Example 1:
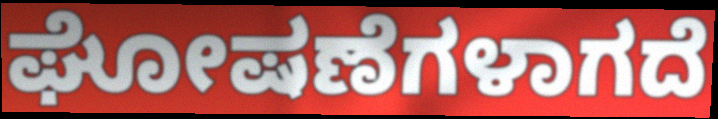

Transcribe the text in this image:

ಘೋಷಣೆಗಳಾಗದೆ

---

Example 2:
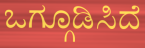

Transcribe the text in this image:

ಒಗ್ಗೂಡಿಸಿದೆ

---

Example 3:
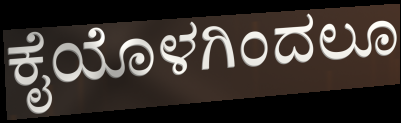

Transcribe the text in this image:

ಕೈಯೊಳಗಿಂದಲೂ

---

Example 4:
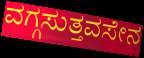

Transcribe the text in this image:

ವಗ್ಗಸುತ್ತವಸೇನ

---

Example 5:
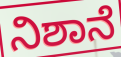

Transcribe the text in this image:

ನಿಶಾನೆ